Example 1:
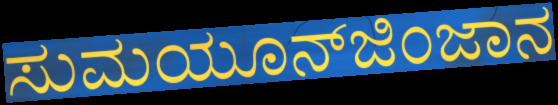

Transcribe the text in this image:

ಸುಮಯೂನ್‍ಜಿಂಜಾನ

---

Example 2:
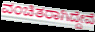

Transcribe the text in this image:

ವಂಚಿತರಾಗಿದ್ದೇವೆ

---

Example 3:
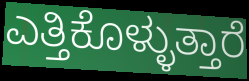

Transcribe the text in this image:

ಎತ್ತಿಕೊಳ್ಳುತ್ತಾರೆ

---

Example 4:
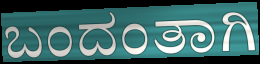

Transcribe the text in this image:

ಬಂದಂತಾಗಿ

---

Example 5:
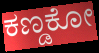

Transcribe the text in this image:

ಕಣ್ಡಕೋ